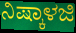
ನಿಷ್ಕಾಳಜಿ